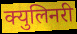
क्युलिनरी